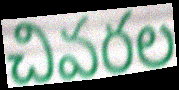
చివరల